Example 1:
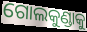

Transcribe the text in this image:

ଗୋଲକୁଣ୍ଡାକୁ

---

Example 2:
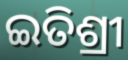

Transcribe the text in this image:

ଇତିଶ୍ରୀ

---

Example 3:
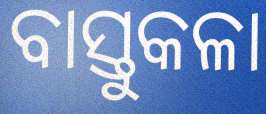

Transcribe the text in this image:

ବାସ୍ତୁକଳା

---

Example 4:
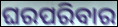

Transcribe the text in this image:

ଘରପରିବାର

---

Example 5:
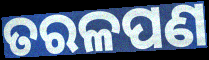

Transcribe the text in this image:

ତରଳପଣ